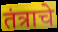
तंत्राचे